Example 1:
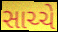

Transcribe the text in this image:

સાચ્ચે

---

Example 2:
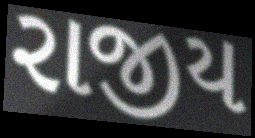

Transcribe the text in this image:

રાજીય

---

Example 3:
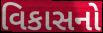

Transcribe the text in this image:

વિકાસનો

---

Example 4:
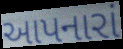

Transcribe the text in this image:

આપનારાં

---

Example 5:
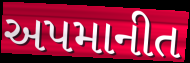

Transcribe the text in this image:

અપમાનીત